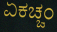
ಏಕಚ್ಚಂ